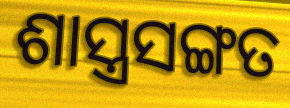
ଶାସ୍ତ୍ରସଙ୍ଗତ